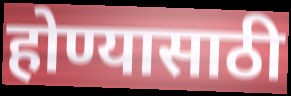
होण्यासाठी